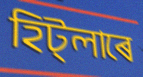
হিট্‌লাৰে